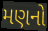
મણનો